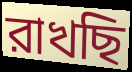
রাখছি